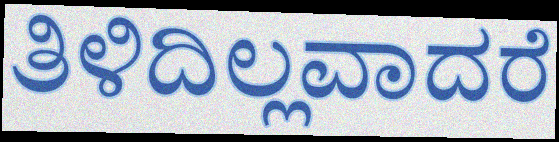
ತಿಳಿದಿಲ್ಲವಾದರೆ